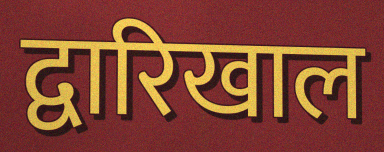
द्वारिखाल